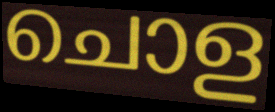
ചൊള